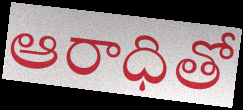
ఆరాధితో